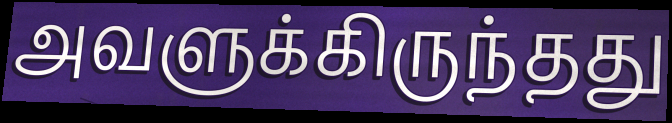
அவளுக்கிருந்தது